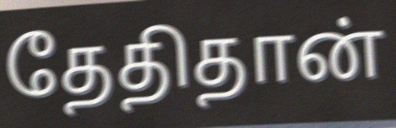
தேதிதான்